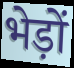
भेड़ों